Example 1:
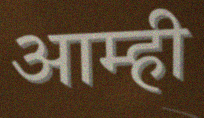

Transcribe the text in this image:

आम्ही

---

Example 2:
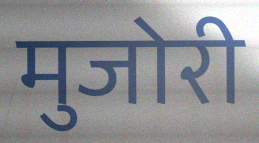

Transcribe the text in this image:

मुजोरी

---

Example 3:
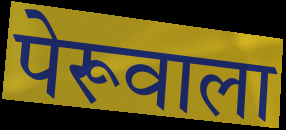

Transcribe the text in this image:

पेरूवाला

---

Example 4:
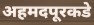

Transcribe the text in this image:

अहमदपूरकडे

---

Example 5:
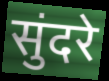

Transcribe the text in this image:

सुंदरे